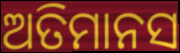
ଅତିମାନସ